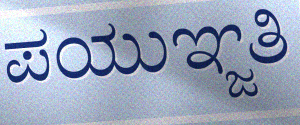
ಪಯುಞ್ಜತಿ